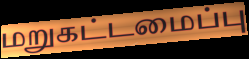
மறுகட்டமைப்பு